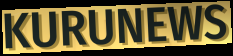
KURUNEWS